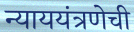
न्याययंत्रणेची